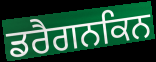
ਡਰੈਗਨਕਿਨ